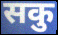
सकु